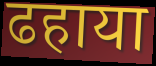
ढहाया